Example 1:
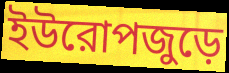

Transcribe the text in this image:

ইউরোপজুড়ে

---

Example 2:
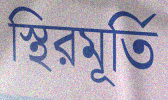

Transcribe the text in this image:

স্থিরমূর্তি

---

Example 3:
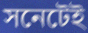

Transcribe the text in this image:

সনেটেই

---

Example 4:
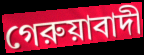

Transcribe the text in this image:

গেরুয়াবাদী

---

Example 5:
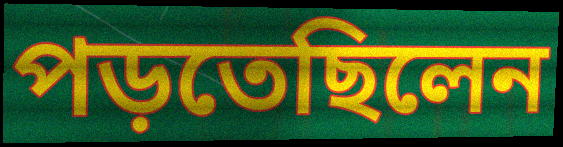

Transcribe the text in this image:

পড়তেছিলেন